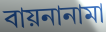
বায়নানামা